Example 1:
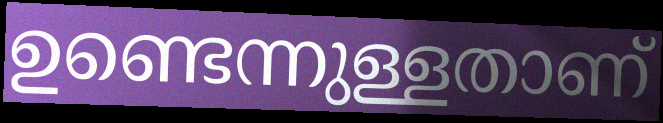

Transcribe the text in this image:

ഉണ്ടെന്നുള്ളതാണ്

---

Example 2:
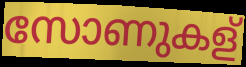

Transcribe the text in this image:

സോണുകള്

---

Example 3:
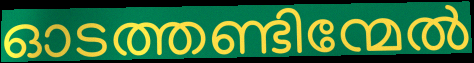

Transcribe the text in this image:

ഓടത്തണ്ടിന്മേൽ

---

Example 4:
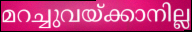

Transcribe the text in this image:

മറച്ചുവയ്ക്കാനില്ല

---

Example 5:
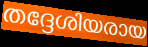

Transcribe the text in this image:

തദ്ദേശിയരായ